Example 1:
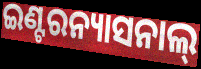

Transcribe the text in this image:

ଇଣ୍ଟରନ୍ୟାସନାଲ୍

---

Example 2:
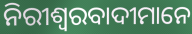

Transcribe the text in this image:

ନିରୀଶ୍ବରବାଦୀମାନେ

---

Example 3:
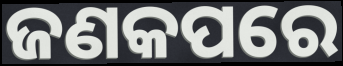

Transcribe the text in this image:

ଜଣକପରେ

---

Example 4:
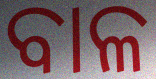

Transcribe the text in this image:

ବାଳ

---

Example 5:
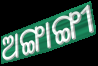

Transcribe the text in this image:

ଅଙ୍ଗାଙ୍ଗୀ